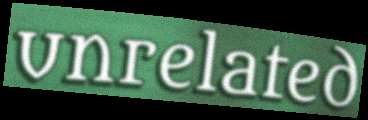
unrelated